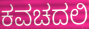
ಕವಚದಲಿ